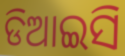
ଡିଆଇସି